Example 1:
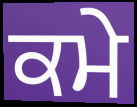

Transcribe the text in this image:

ਕਮੇ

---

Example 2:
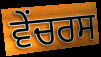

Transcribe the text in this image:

ਵੇਂਚਰਸ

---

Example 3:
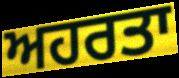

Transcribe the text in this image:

ਅਹਰਤਾ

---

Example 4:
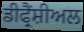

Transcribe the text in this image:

ਡੀਫ੍ਰੈਂਸ਼ੀਅਲ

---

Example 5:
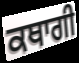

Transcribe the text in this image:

ਕਥਾਗੀ